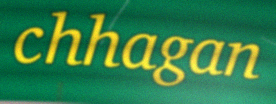
chhagan